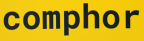
comphor